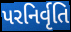
પરનિર્વૃતિ